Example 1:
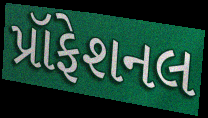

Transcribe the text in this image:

પ્રૉફેશનલ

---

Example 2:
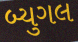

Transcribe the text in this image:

બ્યુગલ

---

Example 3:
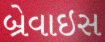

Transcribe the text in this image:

બ્રેવાઇસ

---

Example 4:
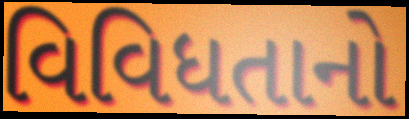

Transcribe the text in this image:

વિવિધતાનો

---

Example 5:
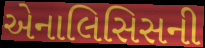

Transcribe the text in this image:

એનાલિસિસની